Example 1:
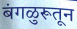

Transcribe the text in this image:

बंगळुरूतून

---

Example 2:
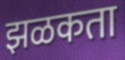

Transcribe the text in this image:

झळकता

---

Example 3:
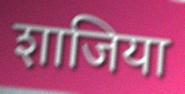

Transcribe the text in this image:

शाजिया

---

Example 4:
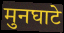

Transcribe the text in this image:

मुनघाटे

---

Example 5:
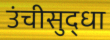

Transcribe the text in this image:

उंचीसुद्धा